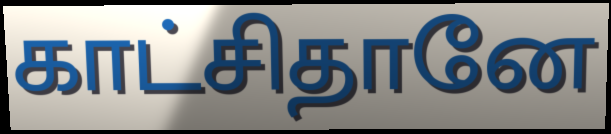
காட்சிதானே